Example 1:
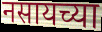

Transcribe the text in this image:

नसायच्या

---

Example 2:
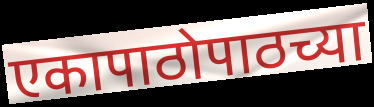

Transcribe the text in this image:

एकापाठोपाठच्या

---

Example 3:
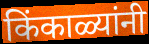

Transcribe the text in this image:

किंकाळ्यांनी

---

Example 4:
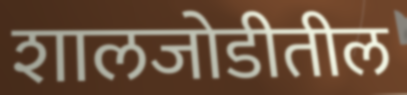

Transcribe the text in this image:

शालजोडीतील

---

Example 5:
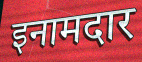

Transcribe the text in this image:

इनामदार